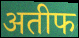
अतीफ